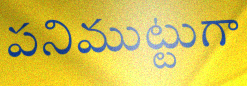
పనిముట్టుగా